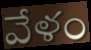
వేళం